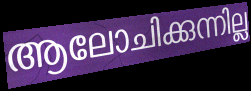
ആലോചിക്കുന്നില്ല